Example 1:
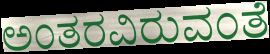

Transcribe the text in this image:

ಅಂತರವಿರುವಂತೆ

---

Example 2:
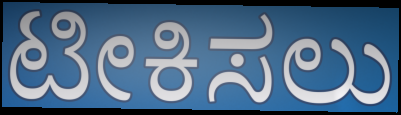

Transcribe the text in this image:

ಟೀಕಿಸಲು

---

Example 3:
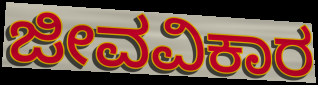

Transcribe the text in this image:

ಜೀವವಿಕಾರ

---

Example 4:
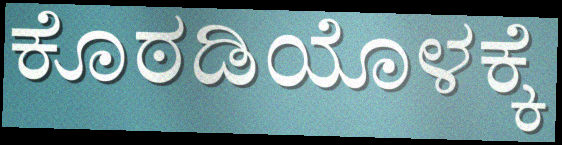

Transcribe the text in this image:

ಕೊಠಡಿಯೊಳಕ್ಕೆ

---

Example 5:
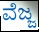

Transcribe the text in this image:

ವೆಜ್ಜ